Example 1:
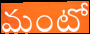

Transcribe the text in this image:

మంటో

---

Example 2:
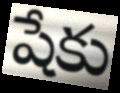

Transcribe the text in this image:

షేకు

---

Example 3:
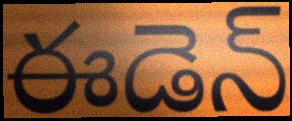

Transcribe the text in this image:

ఈడెన్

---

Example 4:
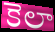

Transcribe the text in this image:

కెలా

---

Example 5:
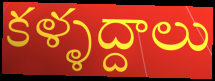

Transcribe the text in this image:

కళ్ళద్దాలు